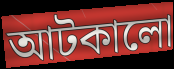
আটকালো